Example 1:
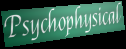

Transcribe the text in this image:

Psychophysical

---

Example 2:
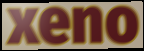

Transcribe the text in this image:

xeno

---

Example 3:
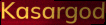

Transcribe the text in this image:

Kasargod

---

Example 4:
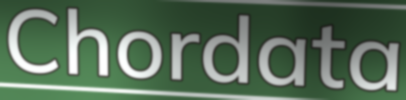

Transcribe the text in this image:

Chordata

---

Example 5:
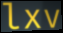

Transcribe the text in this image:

lxv